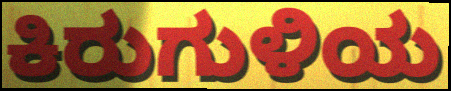
ಕಿರುಗುಳಿಯ